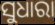
ସୁଧାରା